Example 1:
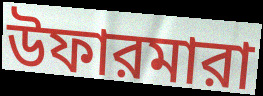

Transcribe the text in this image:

উফারমারা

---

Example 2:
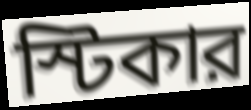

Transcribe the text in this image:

স্টিকার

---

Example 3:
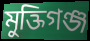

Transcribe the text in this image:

মুক্তিগঞ্জ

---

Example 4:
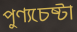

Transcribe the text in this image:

পুণ্যচেষ্টা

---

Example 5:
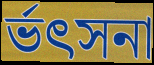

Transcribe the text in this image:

র্ভৎসনা